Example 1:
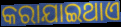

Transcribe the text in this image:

କରାଯାଇଥାଏ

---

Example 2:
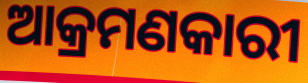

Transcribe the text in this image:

ଆକ୍ରମଣକାରୀ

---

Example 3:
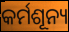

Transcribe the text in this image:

କର୍ମଶୂନ୍ୟ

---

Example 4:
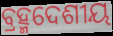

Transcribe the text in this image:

ବ୍ରହ୍ମଦେଶୀୟ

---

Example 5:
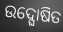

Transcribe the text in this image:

ଉଦ୍ଘୋଷିତ